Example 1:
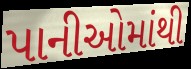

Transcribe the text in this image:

પાનીઓમાંથી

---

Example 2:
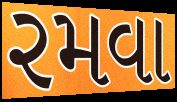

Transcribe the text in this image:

રમવા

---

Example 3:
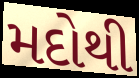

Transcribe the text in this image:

મદોથી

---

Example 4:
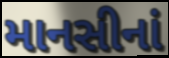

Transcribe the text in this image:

માનસીનાં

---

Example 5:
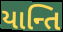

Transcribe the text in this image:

યાન્તિ